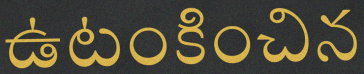
ఉటంకించిన